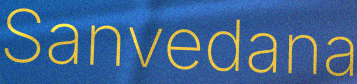
Sanvedana